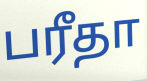
பரீதா